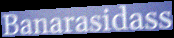
Banarasidass